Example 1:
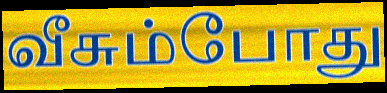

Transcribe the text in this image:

வீசும்போது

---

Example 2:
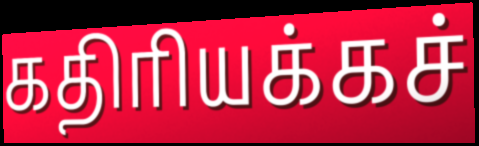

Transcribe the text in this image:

கதிரியக்கச்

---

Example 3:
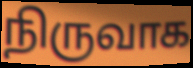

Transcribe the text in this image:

நிருவாக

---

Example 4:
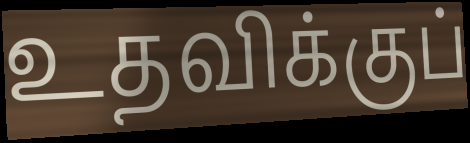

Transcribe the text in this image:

உதவிக்குப்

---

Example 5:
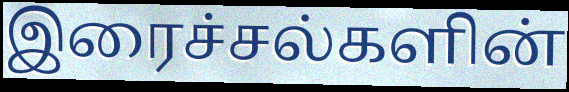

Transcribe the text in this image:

இரைச்சல்களின்